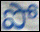
పో